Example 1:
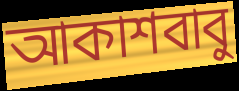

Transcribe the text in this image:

আকাশবাবু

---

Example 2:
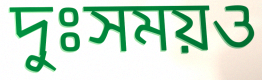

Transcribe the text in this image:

দুঃসময়ও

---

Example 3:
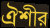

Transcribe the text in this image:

ঐশীর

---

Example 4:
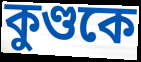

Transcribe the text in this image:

কুণ্ডকে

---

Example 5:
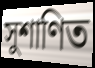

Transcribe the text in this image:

সুশাণিত